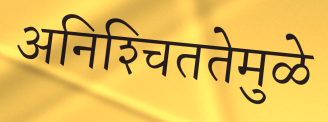
अनिश्चिततेमुळे